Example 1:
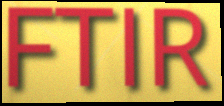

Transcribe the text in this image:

FTIR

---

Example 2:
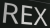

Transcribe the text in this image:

REX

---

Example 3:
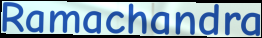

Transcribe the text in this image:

Ramachandra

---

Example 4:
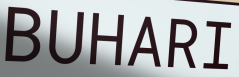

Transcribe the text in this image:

BUHARI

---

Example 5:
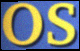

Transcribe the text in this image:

os